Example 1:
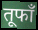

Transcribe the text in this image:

तूफाँ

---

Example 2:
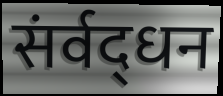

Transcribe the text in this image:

संर्वद्धन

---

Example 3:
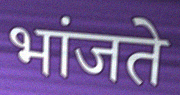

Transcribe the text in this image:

भांजते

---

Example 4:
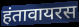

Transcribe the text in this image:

हंतावायरस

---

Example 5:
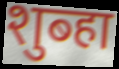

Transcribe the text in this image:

शुब्हा